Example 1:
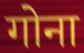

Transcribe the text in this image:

गोना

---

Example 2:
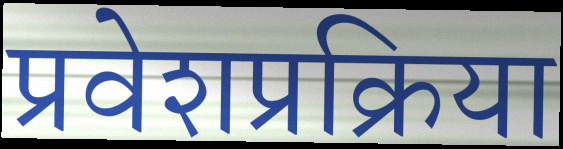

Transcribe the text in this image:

प्रवेशप्रक्रिया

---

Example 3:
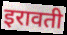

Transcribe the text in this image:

इरावती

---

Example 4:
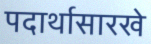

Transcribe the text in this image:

पदार्थासारखे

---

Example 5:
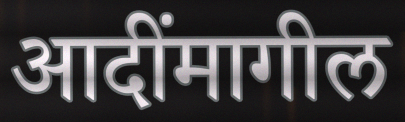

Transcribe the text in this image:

आदींमागील